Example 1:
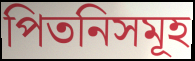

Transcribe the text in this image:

পিতনিসমূহ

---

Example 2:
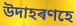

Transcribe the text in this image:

উদাহৰণহে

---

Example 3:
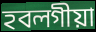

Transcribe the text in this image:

হবলগীয়া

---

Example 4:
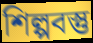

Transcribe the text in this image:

শিল্পবস্তু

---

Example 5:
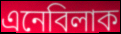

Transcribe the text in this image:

এনেবিলাক